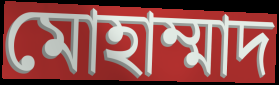
মোহাম্মাদ